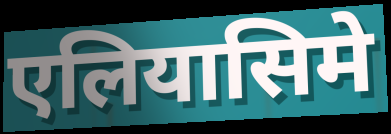
एलियासिमे